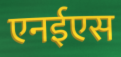
एनईएस